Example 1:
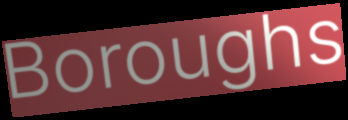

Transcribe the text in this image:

Boroughs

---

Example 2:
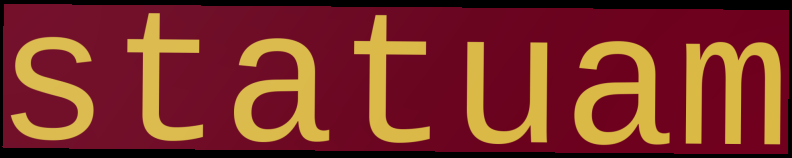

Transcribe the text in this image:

statuam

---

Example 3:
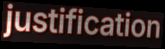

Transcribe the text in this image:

justification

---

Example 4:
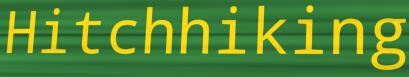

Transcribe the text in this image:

Hitchhiking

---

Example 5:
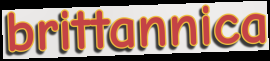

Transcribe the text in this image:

brittannica